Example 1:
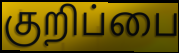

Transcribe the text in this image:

குறிப்பை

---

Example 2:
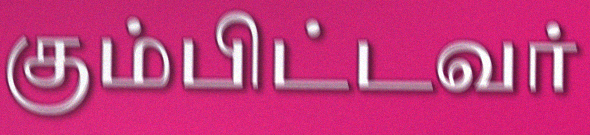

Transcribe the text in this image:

கும்பிட்டவர்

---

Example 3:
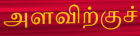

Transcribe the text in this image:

அளவிற்குச்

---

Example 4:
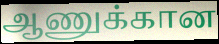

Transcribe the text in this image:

ஆணுக்கான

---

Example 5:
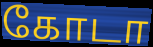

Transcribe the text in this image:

கோடா